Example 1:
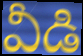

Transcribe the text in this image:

వీడి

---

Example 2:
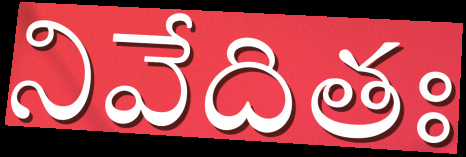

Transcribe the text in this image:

నివేదితః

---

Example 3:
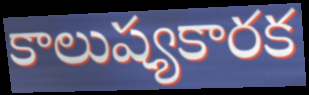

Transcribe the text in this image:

కాలుష్యకారక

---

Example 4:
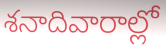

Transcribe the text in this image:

శనాదివారాల్లో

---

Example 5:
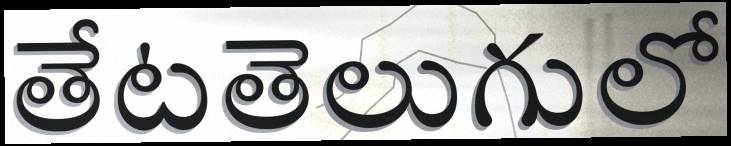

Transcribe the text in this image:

తేటతెలుగులో